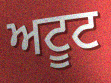
ਅਟੂਟ